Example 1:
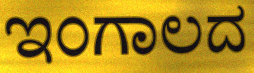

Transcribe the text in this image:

ಇಂಗಾಲದ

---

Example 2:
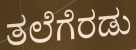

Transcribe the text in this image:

ತಲೆಗೆರಡು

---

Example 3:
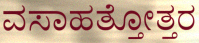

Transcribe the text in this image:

ವಸಾಹತ್ತೋತ್ತರ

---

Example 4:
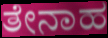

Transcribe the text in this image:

ತೇನಾಹ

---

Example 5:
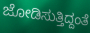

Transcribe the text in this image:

ಜೋಡಿಸುತ್ತಿದ್ದಂತೆ